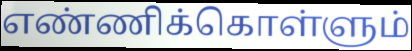
எண்ணிக்கொள்ளும்